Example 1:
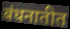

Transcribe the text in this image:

बंधनातीत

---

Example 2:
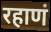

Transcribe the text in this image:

रहाणं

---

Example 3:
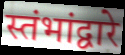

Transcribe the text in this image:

स्तंभांद्वारे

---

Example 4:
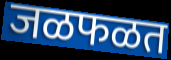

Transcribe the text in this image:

जळफळत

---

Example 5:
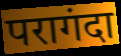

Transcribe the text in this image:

परागंदा